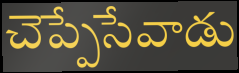
చెప్పేసేవాడు